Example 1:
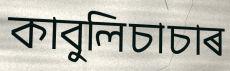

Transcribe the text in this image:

কাবুলিচাচাৰ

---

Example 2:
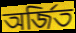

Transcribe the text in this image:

অৰ্জিত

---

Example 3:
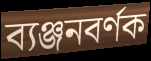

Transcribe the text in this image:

ব্যঞ্জনবৰ্ণক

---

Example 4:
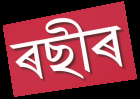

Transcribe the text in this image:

ৰছীৰ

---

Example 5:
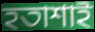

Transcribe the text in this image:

হতাশাই